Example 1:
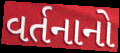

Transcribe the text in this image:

વર્તનાનો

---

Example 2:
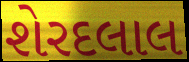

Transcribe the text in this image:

શેરદલાલ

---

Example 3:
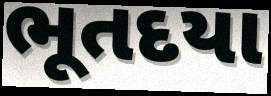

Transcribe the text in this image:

ભૂતદયા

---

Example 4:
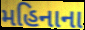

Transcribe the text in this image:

મહિનાના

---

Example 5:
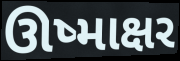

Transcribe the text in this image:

ઊષ્માક્ષર